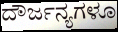
ದೌರ್ಜನ್ಯಗಳೂ